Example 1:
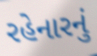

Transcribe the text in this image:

રહેનારનું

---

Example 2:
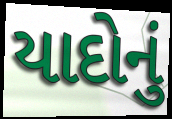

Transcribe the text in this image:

યાદોનું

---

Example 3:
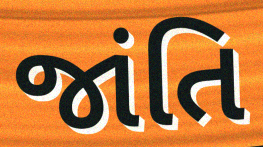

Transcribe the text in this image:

જાંતિ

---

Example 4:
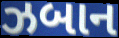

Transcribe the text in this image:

ઝબાન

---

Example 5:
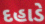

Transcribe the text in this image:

દહાડે